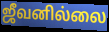
ஜீவனில்லை